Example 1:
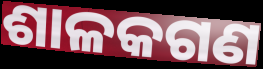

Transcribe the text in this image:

ଶାଳକଗଣ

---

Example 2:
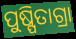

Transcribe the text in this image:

ପୁଷ୍ପିତାଗ୍ରା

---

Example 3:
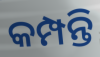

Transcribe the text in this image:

କମ୍ପନ୍ତି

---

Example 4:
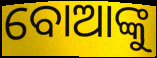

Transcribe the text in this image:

ବୋଆଙ୍କୁ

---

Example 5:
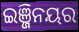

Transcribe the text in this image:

ଇଞ୍ଜିନୟର